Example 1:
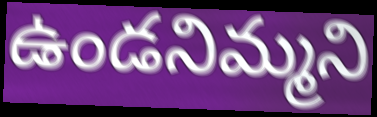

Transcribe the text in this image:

ఉండనిమ్మని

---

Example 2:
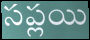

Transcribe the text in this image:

సప్లయి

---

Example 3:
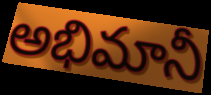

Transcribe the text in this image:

అభిమానీ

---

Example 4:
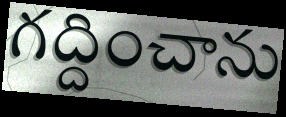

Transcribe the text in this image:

గద్దించాను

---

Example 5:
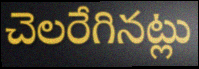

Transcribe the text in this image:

చెలరేగినట్లు